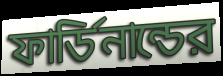
ফার্ডিনান্ডের